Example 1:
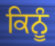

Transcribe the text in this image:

ਕਿਨੂੰ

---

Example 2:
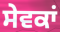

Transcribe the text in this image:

ਸੇਵਕਾਂ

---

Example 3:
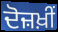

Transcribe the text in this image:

ਦੋਜ਼ਖ਼ੀਂ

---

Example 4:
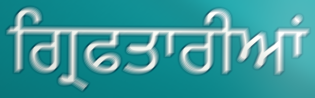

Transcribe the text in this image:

ਗ੍ਰਿਫਤਾਰੀਆਂ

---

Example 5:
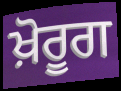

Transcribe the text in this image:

ਖ਼ੋਰੂਗ